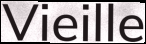
Vieille